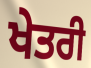
ਖੇਤਰੀ